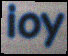
ioy